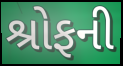
શ્રોફની